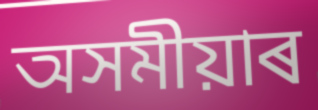
অসমীয়াৰ